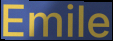
Emile